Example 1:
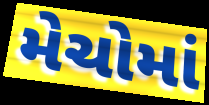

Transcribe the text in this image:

મેચોમાં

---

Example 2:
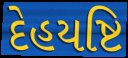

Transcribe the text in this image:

દેહયષ્ટિ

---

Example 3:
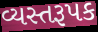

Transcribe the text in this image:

વ્યસ્તરૂપક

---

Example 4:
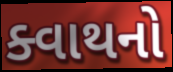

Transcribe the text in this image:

ક્વાથનો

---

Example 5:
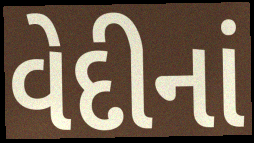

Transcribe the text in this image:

વેદીનાં